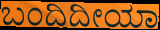
ಬಂದಿದೀಯಾ